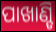
ପାଖାଣ୍ଡି